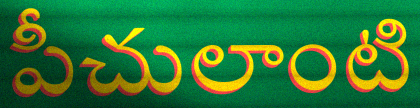
పీచులాంటి